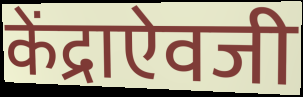
केंद्राऐवजी